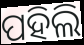
ପହିଲି